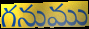
గనుము